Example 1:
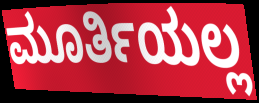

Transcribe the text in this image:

ಮೂರ್ತಿಯಲ್ಲ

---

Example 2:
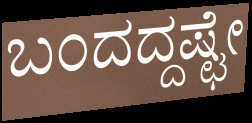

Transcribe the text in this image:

ಬಂದದ್ದಷ್ಟೇ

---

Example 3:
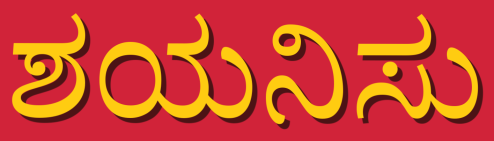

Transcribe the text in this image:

ಶಯನಿಸು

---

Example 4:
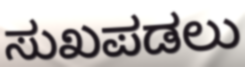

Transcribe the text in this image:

ಸುಖಪಡಲು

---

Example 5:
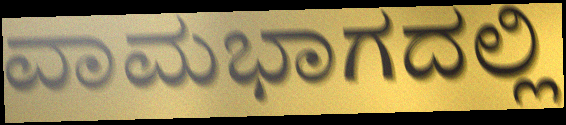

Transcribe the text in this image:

ವಾಮಭಾಗದಲ್ಲಿ